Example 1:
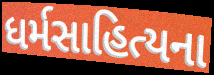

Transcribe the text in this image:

ધર્મસાહિત્યના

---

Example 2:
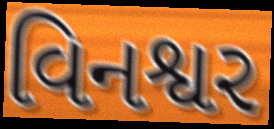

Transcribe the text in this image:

વિનશ્વર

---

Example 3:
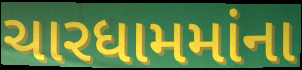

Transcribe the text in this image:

ચારધામમાંના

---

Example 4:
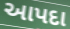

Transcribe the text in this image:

આપદા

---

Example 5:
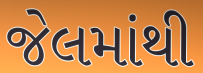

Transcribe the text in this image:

જેલમાંથી